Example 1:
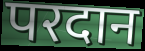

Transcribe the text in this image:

परदान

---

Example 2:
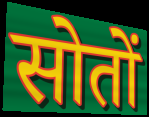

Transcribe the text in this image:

सोतों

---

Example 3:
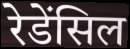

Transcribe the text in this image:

रेडेंसिल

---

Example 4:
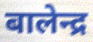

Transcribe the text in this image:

बालेन्द्र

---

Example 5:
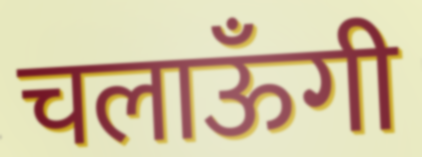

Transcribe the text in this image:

चलाऊँगी